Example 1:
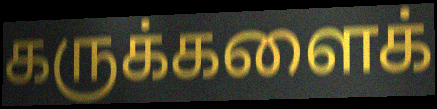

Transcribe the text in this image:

கருக்களைக்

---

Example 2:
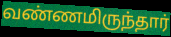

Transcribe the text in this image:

வண்ணமிருந்தார்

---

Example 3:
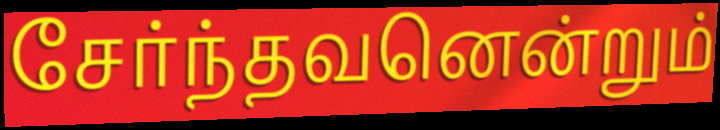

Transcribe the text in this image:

சேர்ந்தவனென்றும்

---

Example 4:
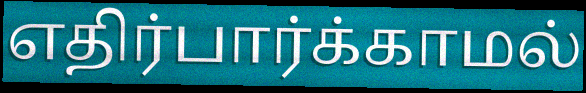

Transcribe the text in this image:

எதிர்பார்க்காமல்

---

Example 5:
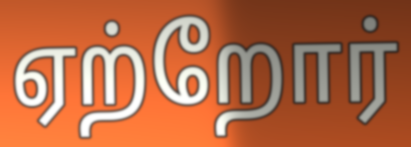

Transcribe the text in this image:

ஏற்றோர்